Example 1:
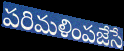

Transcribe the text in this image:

పరిమళింపజేసే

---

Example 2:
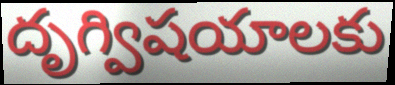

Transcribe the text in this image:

దృగ్విషయాలకు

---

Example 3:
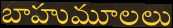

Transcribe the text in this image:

బాహుమూలలు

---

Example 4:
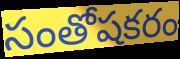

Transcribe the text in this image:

సంతోషకరం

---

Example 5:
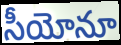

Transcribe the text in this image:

సీయోనూ